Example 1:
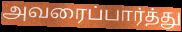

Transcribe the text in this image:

அவரைப்பார்த்து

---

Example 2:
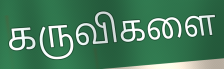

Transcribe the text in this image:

கருவிகளை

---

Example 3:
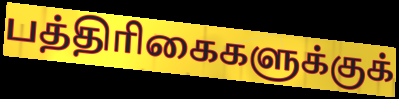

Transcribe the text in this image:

பத்திரிகைகளுக்குக்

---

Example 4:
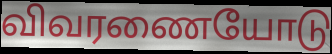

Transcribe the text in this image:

விவரணையோடு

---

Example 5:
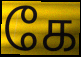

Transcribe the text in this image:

கே